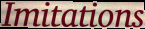
Imitations